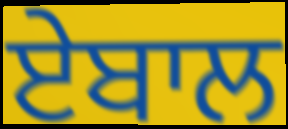
ਏਬਾਲ